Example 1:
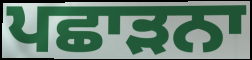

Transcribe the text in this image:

ਪਛਾੜਨਾ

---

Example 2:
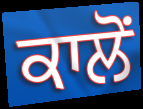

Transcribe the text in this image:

ਕਾਲੋਂ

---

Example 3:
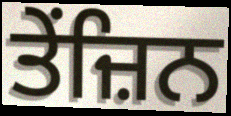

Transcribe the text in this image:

ਤੇਂਜ਼ਿਨ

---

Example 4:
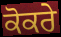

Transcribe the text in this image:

ਕੋਕਰੇ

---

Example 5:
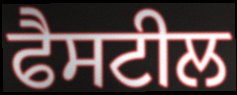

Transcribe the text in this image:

ਫੈਸਟੀਲ